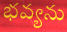
భవ్యను